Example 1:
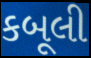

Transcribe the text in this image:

કબૂલી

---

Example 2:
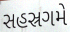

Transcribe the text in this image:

સહસ્રગમે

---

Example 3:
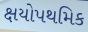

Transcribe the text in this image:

ક્ષયોપથમિક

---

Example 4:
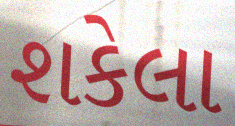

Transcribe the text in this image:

શકેલા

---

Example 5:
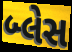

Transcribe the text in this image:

બ્લેસ